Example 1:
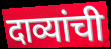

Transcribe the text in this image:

दाव्यांची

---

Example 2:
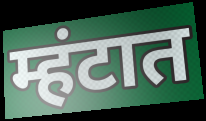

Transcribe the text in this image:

म्हंटात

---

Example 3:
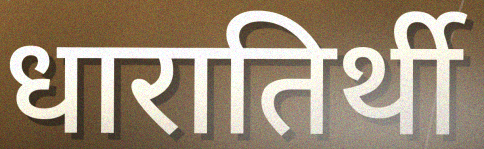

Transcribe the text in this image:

धारातिर्थी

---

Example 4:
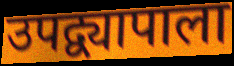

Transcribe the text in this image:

उपद्व्यापाला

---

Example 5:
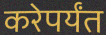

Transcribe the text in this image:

करेपर्यंत